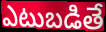
ఎటుబడితే